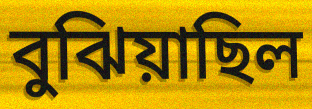
বুঝিয়াছিল